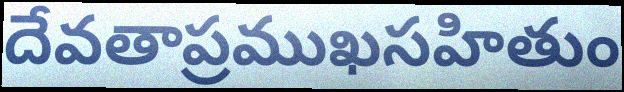
దేవతాప్రముఖసహితుం